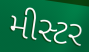
મીસ્ટર